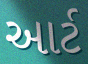
આર્ટ